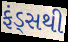
ફંડ્સથી